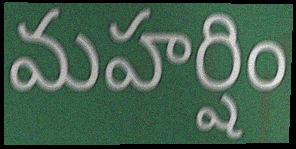
మహర్షిం